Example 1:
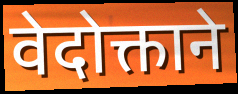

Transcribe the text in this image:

वेदोक्ताने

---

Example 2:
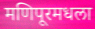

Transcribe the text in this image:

मणिपूरमधला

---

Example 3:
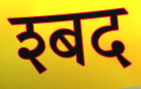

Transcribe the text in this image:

श्बद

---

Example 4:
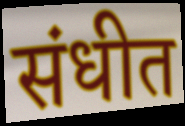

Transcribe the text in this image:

संधीत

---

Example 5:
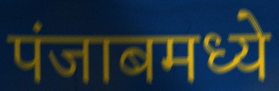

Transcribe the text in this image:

पंजाबमध्ये